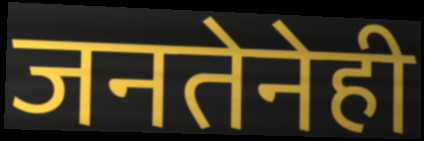
जनतेनेही